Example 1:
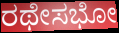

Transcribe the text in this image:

ರಥೇಸಭೋ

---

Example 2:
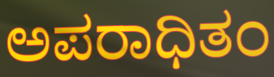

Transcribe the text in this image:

ಅಪರಾಧಿತಂ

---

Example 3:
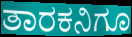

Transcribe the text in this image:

ತಾರಕನಿಗೂ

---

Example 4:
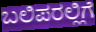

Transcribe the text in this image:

ಬಲಿಪರಲ್ಲಿಗೆ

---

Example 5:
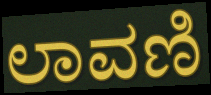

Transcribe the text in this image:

ಲಾವಣಿ